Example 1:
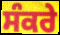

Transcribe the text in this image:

ਸੰਕਰੇ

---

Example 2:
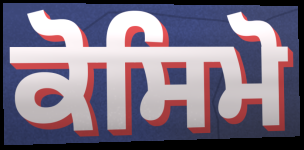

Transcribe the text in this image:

ਕੋਸਿਮੋ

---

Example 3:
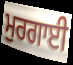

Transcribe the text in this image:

ਮੁਰਗਾਈ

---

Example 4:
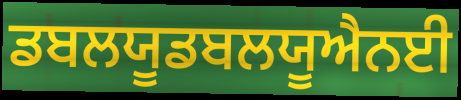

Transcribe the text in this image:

ਡਬਲਯੂਡਬਲਯੂਐਨਈ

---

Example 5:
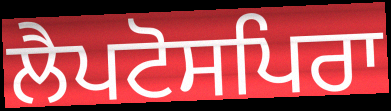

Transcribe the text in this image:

ਲੈਪਟੋਸਪਿਰਾ